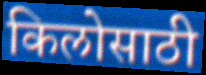
किलोसाठी